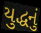
યુદ્ધનું